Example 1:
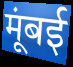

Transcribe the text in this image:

मूंबई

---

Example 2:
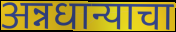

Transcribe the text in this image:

अन्नधान्याचा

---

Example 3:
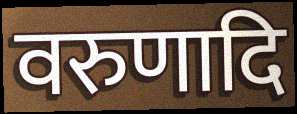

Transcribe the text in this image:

वरुणादि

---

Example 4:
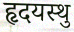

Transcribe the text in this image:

हृदयस्थु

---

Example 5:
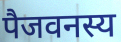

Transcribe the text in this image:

पैजवनस्य